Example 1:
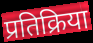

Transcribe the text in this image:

प्रतिक्रिया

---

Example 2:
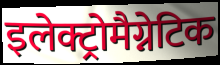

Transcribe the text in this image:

इलेक्ट्रोमैग्नेटिक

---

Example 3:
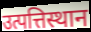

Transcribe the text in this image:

उत्पत्तिस्थान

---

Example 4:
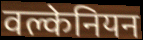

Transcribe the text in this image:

वल्केनियन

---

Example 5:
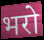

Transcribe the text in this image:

भरो